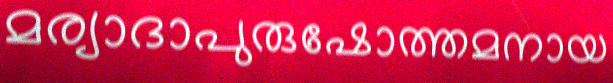
മര്യാദാപുരുഷോത്തമനായ